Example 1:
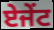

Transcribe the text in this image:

ਏਜੇਂਟ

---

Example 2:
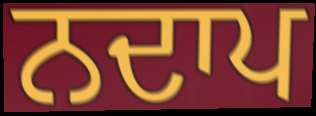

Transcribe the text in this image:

ਨਦਾਪ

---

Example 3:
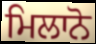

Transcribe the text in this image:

ਮਿਲਾਨੋ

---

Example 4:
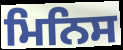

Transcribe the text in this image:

ਮਿਨਿਸ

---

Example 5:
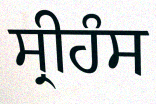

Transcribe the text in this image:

ਸ੍ਰੀਹੰਸ